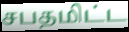
சபதமிட்ட